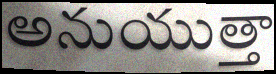
అనుయుత్తా